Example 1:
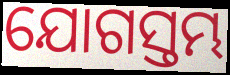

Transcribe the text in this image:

ଯୋଗସ୍ତମ୍ଭ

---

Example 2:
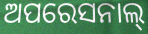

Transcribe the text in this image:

ଅପରେସନାଲ୍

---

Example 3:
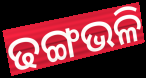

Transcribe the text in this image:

ଢଙ୍ଗଭଳି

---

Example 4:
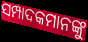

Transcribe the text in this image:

ସମ୍ପାଦକମାନଙ୍କୁ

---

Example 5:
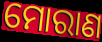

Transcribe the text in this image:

ମୋରାଣ